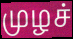
முழச்